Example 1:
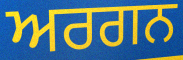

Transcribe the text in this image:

ਅਰਗਨ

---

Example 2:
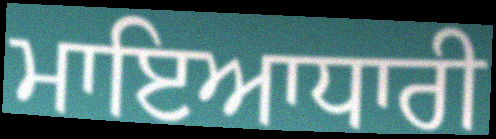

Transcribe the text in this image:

ਮਾਇਆਧਾਰੀ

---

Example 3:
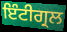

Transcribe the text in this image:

ਇੰਟੀਗ੍ਰਲ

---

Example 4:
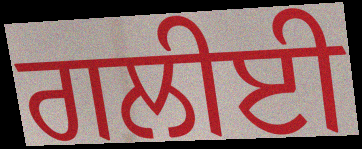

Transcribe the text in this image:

ਗਲੀਈ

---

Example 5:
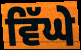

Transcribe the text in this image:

ਵਿੱਘੇ